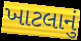
ખાટલાનું